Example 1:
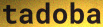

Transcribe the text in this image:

tadoba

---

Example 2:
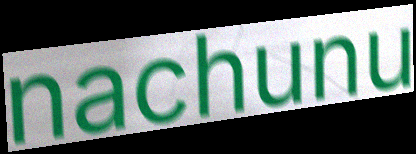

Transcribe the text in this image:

nachunu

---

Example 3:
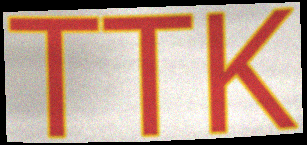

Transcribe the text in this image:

TTK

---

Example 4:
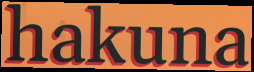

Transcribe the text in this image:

hakuna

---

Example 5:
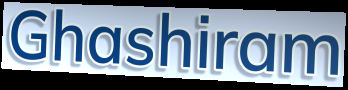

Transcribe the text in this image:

Ghashiram